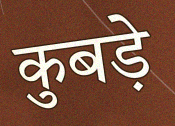
कुबड़े